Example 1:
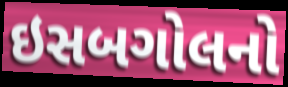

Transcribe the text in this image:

ઇસબગોલનો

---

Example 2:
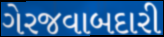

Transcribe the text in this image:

ગેરજવાબદારી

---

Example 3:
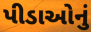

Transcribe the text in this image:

પીડાઓનું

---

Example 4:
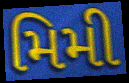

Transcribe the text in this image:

મિમી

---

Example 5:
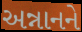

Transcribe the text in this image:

અન્નાનને